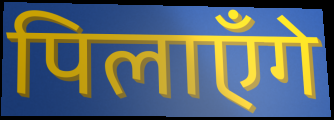
पिलाएँगे